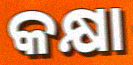
କକ୍ଷା